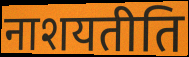
नाशयतीति